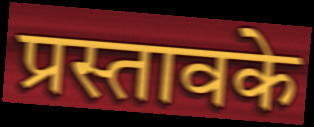
प्रस्तावके